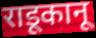
राडूकानू